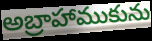
అబ్రాహాముకును